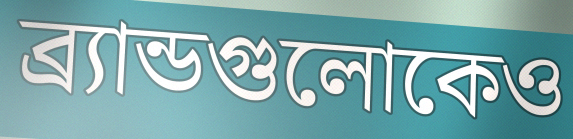
ব্র্যান্ডগুলোকেও